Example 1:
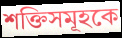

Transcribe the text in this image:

শক্তিসমূহকে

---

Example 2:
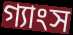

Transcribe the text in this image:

গ্যাংস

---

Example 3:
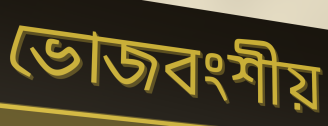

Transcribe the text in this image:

ভোজবংশীয়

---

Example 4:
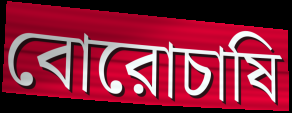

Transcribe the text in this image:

বোরোচাষি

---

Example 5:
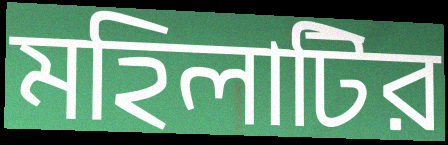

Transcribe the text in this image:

মহিলাটির